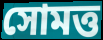
সোমত্ত